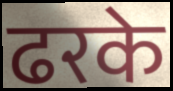
ढरके